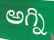
అగ్ని